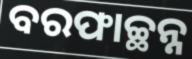
ବରଫାଚ୍ଛନ୍ନ